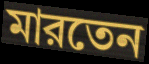
মারতেন